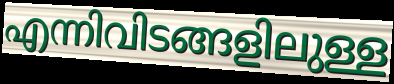
എന്നിവിടങ്ങളിലുള്ള